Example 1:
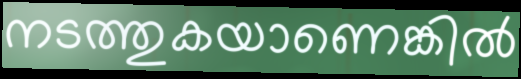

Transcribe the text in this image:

നടത്തുകയാണെങ്കിൽ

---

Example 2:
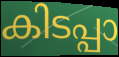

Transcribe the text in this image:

കിടപ്പാ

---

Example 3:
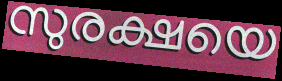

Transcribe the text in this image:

സുരക്ഷയെ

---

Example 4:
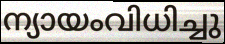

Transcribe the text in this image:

ന്യായംവിധിച്ചു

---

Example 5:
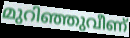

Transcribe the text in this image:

മുറിഞ്ഞുവീണ്